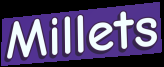
Millets